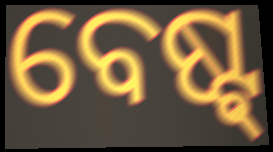
ବେଷ୍ଟ୍